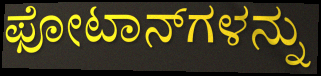
ಫೋಟಾನ್‌ಗಳನ್ನು